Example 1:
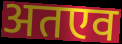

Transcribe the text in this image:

अतएव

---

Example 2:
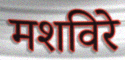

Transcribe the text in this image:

मशविरे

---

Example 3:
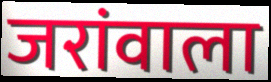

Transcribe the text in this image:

जरांवाला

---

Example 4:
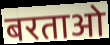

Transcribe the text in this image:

बरताओ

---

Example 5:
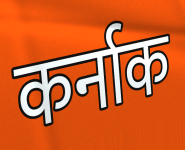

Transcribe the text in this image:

कर्नाक